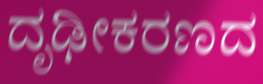
ದೃಢೀಕರಣದ